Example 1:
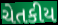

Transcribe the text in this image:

ચેતકીય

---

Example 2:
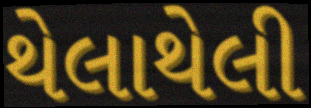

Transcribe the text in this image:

થેલાથેલી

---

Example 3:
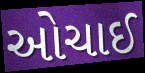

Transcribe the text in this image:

ઓચાઈ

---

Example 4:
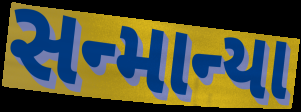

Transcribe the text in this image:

સન્માન્યા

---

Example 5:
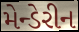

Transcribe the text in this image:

મેન્ડેરીન